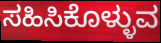
ಸಹಿಸಿಕೊಳ್ಳುವ